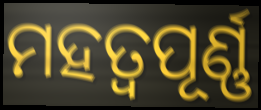
ମହତ୍ଵପୂର୍ଣ୍ଣ